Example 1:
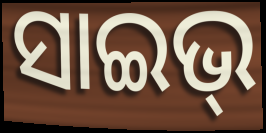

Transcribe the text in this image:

ସାଇଭ୍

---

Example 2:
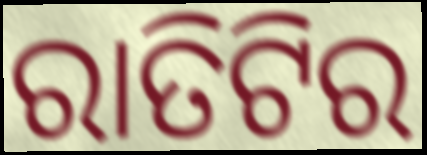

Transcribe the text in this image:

ରାତିଟିର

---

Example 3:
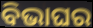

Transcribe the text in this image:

ବିଭାଘର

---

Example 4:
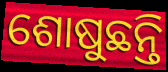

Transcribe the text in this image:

ଶୋଷୁଛନ୍ତି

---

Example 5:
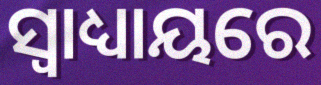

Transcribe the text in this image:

ସ୍ଵାଧ୍ୟାୟରେ